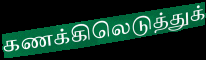
கணக்கிலெடுத்துக்